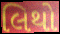
લિથો